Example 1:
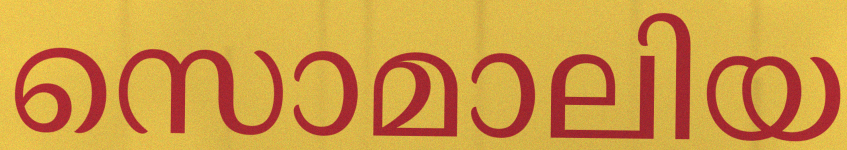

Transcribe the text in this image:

സൊമാലിയ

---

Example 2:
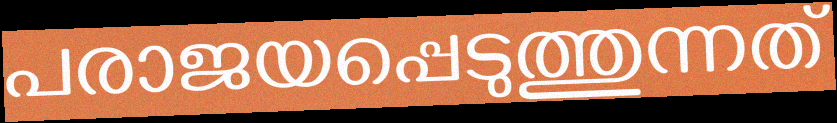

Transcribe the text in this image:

പരാജയപ്പെടുത്തുന്നത്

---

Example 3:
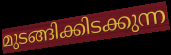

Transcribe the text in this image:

മുടങ്ങിക്കിടക്കുന്ന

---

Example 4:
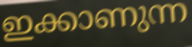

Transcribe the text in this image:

ഇക്കാണുന്ന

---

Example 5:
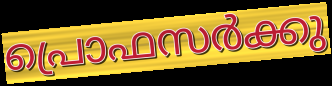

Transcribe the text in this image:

പ്രൊഫസർക്കു